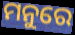
ମନୁରେ